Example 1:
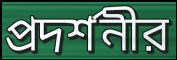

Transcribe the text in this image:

প্রদর্শনীর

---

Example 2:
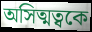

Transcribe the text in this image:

অসিত্মত্বকে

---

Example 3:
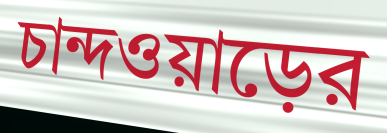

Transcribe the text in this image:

চান্দওয়াড়ের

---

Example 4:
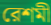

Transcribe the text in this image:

রেশমী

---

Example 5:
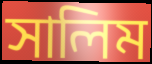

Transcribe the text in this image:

সালিম